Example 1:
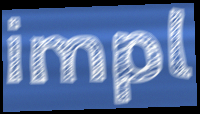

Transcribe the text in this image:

impl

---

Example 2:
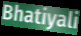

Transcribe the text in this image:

Bhatiyali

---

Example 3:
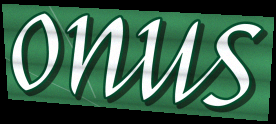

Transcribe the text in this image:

onus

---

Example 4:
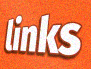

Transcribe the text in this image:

links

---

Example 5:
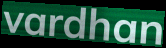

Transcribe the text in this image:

vardhan